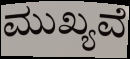
ಮುಖ್ಯವೆ